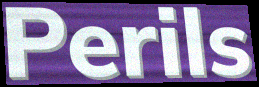
Perils